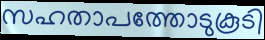
സഹതാപത്തോടുകൂടി